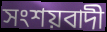
সংশয়বাদী